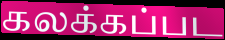
கலக்கப்பட